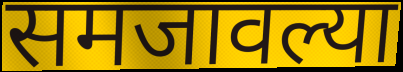
समजावल्या